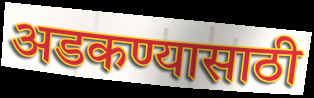
अडकण्यासाठी